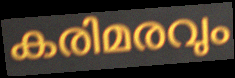
കരിമരവും